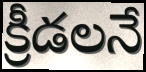
క్రీడలనే